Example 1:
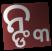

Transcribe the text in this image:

ନ୍ଙ୍କ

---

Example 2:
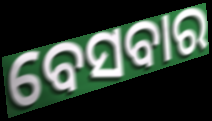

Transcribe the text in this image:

ବେସବାର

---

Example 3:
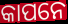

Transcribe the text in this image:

କାପନେ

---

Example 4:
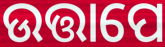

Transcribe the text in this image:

ଉତ୍ତାପେ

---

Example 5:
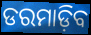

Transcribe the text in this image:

ଡରମାଡ଼ିବ